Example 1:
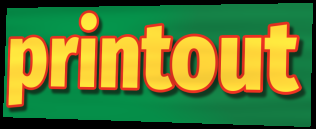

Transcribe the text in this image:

printout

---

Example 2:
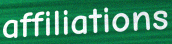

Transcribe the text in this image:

affiliations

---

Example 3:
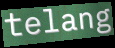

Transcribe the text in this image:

telang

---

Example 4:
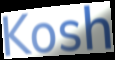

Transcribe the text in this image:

Kosh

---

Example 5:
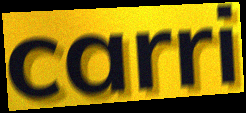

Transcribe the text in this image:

carri